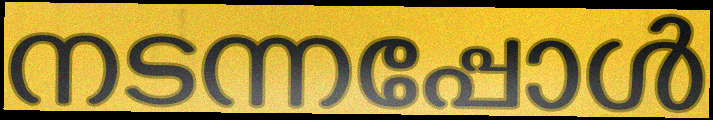
നടന്നപ്പോൾ